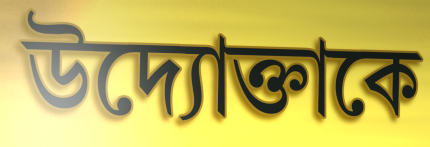
উদ্যোক্তাকে